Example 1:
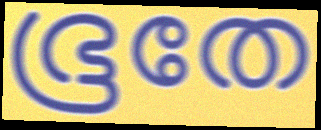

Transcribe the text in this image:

ഭൂതേ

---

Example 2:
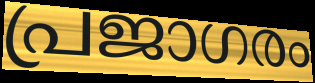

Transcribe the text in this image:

പ്രജാഗരം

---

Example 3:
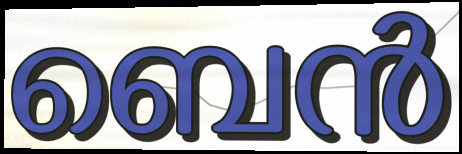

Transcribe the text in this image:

ബെൻ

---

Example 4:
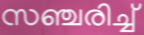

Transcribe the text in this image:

സഞ്ചരിച്ച്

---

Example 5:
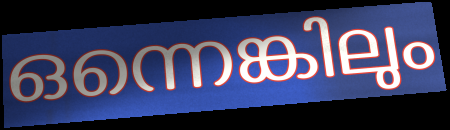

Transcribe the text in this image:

ഒന്നെങ്കിലും